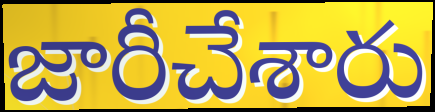
జారీచేశారు